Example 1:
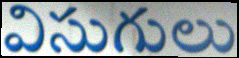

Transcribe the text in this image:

విసుగులు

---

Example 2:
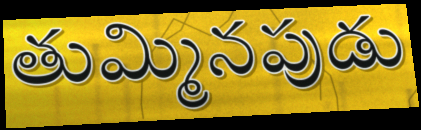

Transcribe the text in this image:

తుమ్మినపుడు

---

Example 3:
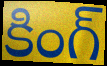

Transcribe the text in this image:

కింగ్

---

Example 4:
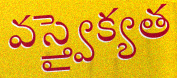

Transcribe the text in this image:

వస్త్వైక్యత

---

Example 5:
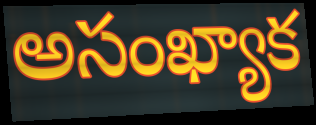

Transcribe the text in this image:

అసంఖ్యాక